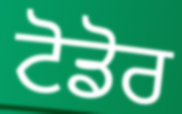
ਟੋਡੋਰ